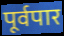
पूर्वपार